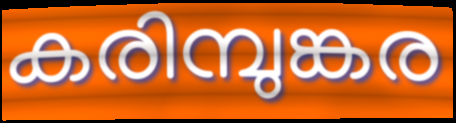
കരിമ്പുങ്കര